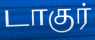
டாகுர்